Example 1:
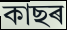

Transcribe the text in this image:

কাছৰ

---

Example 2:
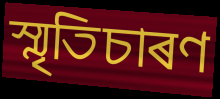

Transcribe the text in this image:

স্মৃতিচাৰণ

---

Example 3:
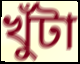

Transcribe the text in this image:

খুঁটা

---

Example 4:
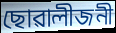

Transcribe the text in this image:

ছোৱালীজনী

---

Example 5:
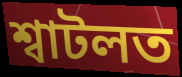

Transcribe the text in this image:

শ্বাটলত